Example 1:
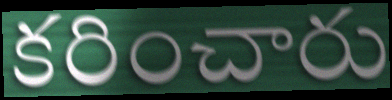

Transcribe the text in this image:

కరించారు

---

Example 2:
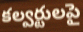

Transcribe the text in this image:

కల్వర్టులపై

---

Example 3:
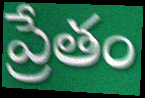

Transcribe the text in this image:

ప్రేతం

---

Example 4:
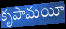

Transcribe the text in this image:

కృపామయీ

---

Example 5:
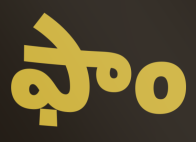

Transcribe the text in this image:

ఫాం